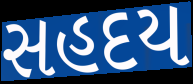
સહદય